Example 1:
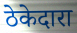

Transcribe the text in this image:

ठेकेदारा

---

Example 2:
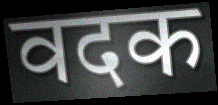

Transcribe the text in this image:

वदक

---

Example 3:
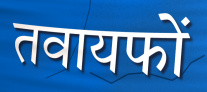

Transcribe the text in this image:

तवायफों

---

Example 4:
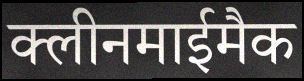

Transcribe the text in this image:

क्लीनमाईमैक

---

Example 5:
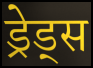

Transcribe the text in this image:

ड्रेड्स